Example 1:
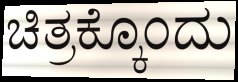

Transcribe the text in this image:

ಚಿತ್ರಕ್ಕೊಂದು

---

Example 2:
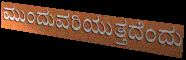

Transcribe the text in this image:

ಮುಂದುವರಿಯುತ್ತದೆಂದು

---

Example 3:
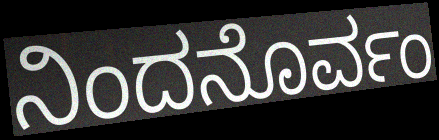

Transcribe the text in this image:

ನಿಂದನೊರ್ವಂ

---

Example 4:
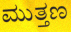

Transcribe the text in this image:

ಮುತ್ತಣ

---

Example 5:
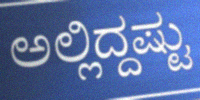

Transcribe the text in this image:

ಅಲ್ಲಿದ್ದಷ್ಟು